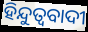
ହିନ୍ଦୁତ୍ବବାଦୀ